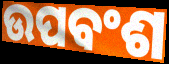
ଉପବଂଶ